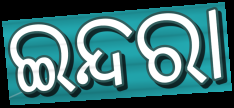
ଇନ୍ଦରା